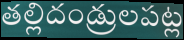
తల్లిదండ్రులపట్ల